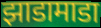
झाडामाडा